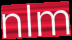
nlm